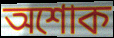
অশোক